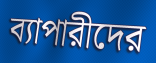
ব্যাপারীদের